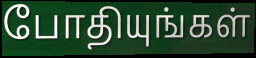
போதியுங்கள்